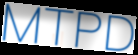
MTPD